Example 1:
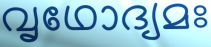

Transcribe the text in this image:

വൃഥോദ്യമഃ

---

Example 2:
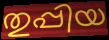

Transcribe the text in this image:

തുപ്പിയ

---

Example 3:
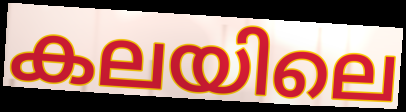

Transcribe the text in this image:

കലയിലെ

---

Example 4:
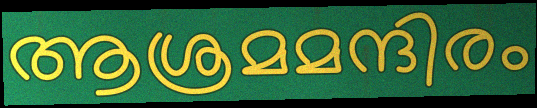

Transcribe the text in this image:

ആശ്രമമന്ദിരം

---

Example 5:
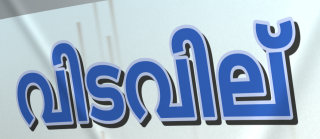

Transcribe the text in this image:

വിടവില്